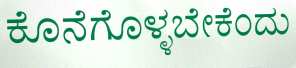
ಕೊನೆಗೊಳ್ಳಬೇಕೆಂದು